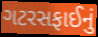
ગટરસફાઈનું